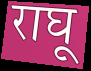
राघू